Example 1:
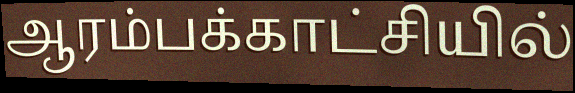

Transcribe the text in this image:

ஆரம்பக்காட்சியில்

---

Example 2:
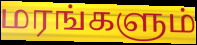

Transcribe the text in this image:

மரங்களும்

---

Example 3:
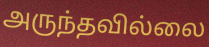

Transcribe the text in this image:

அருந்தவில்லை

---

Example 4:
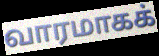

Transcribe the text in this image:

வாரமாகக்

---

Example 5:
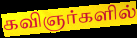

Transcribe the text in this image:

கவிஞர்களில்